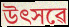
উৎসৱে